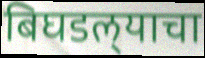
बिघडल्याचा